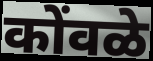
कोंवळे